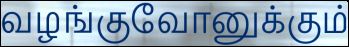
வழங்குவோனுக்கும்